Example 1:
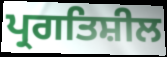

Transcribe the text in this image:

ਪ੍ਰਗਤਿਸ਼ੀਲ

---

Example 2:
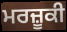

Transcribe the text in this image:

ਮਰਜ਼ੂਕੀ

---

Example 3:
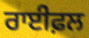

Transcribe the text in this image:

ਰਾਈਫ਼ਲ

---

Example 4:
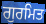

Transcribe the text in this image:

ਗੁਰਮਿਤ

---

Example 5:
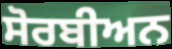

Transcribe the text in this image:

ਸੋਰਬੀਅਨ